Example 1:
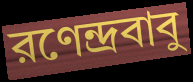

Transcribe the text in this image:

রণেন্দ্রবাবু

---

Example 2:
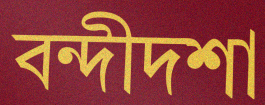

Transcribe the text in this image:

বন্দীদশা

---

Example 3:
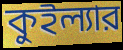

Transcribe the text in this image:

কুইল্যার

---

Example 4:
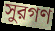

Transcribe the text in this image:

সুরগণ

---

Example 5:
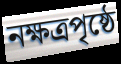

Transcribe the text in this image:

নক্ষত্রপৃষ্ঠে